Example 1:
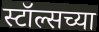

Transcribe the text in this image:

स्टॉल्सच्या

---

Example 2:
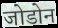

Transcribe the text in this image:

जोडोन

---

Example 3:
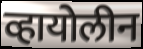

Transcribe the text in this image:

व्हायोलीन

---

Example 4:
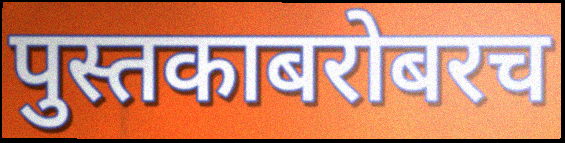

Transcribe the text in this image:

पुस्तकाबरोबरच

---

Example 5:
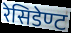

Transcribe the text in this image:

रेसिडेण्ट